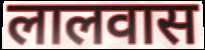
लालवास